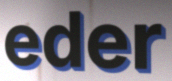
eder